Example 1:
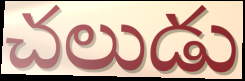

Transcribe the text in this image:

చలుడు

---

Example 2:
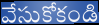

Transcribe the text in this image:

వేసుకోకండి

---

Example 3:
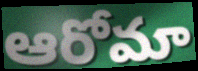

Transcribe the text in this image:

ఆరోమా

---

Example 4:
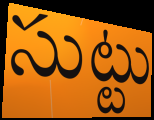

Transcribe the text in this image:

సుట్టు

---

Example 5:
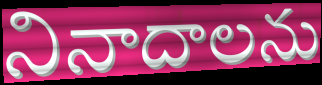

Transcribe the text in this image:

నినాదాలను